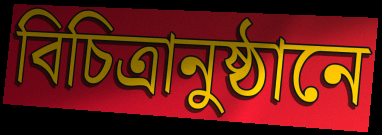
বিচিত্রানুষ্ঠানে